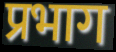
प्रभाग